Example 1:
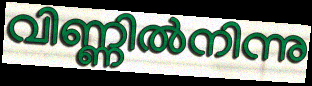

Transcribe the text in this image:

വിണ്ണിൽനിന്നു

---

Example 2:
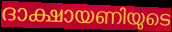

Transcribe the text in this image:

ദാക്ഷായണിയുടെ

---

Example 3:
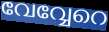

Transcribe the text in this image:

വേവ്വേറെ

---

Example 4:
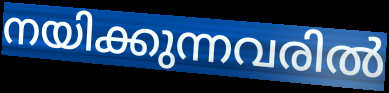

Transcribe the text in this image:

നയിക്കുന്നവരിൽ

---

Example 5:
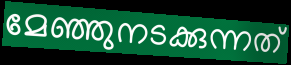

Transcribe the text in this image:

മേഞ്ഞുനടക്കുന്നത്